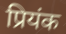
प्रियंक